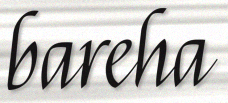
bareha